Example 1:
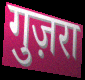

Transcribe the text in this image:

गुज़रा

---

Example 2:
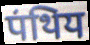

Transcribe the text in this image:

पंथिय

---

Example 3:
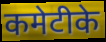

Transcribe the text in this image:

कमेटीके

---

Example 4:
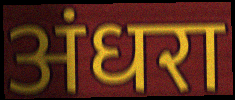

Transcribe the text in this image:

अंधरा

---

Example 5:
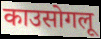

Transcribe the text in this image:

काउसोगलू